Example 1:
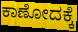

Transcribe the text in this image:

ಕಾಣೋದಕ್ಕೆ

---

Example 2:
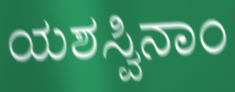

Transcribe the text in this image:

ಯಶಸ್ವಿನಾಂ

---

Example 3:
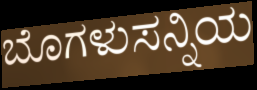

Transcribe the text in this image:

ಬೊಗಳುಸನ್ನಿಯ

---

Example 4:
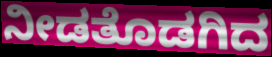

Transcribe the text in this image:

ನೀಡತೊಡಗಿದ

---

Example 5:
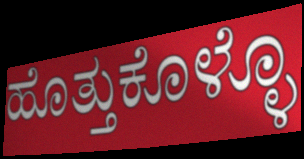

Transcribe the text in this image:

ಹೊತ್ತುಕೊಳ್ಳೊ